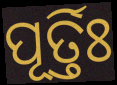
ପୂର୍ତ୍ତିଃ